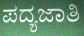
ಪದ್ಯಜಾತಿ